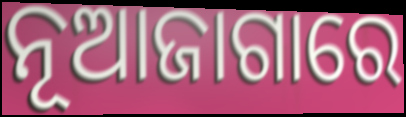
ନୂଆଜାଗାରେ